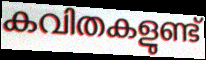
കവിതകളുണ്ട്